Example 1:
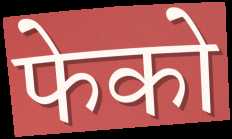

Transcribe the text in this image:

फेको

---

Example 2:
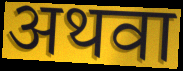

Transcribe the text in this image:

अथवा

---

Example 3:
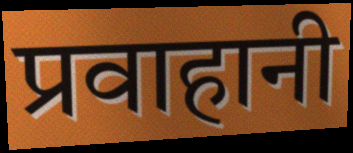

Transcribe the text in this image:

प्रवाहानी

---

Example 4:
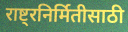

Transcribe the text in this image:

राष्ट्रनिर्मितीसाठी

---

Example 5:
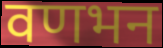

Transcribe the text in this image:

वणभन